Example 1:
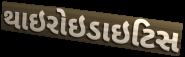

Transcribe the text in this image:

થાઇરોઇડાઇટિસ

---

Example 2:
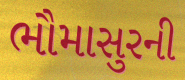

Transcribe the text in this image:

ભૌમાસુરની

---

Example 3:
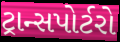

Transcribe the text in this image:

ટ્રાન્સપોર્ટરો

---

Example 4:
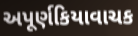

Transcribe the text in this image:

અપૂર્ણકિયાવાચક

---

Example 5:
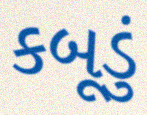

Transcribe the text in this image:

કબૂડું